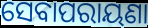
ସେବାପରାୟଣା